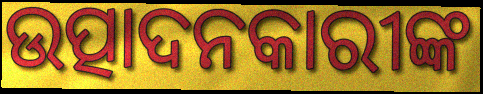
ଉତ୍ପାଦନକାରୀଙ୍କ